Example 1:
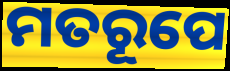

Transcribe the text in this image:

ମତରୂପେ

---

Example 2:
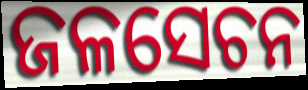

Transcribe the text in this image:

ଜଳସେଚନ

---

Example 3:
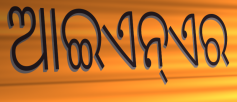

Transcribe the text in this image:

ଆଇଏନ୍ଏର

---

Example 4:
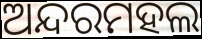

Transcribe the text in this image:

ଅନ୍ଦରମହଲ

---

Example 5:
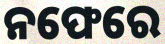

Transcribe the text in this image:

ନଫେରେ